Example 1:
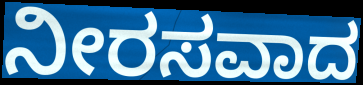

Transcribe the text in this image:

ನೀರಸವಾದ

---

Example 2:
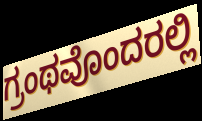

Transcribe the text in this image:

ಗ್ರಂಥವೊಂದರಲ್ಲಿ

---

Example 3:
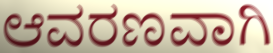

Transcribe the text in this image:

ಆವರಣವಾಗಿ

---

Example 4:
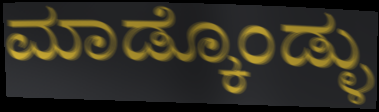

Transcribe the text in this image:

ಮಾಡ್ಕೊಂಡ್ಳು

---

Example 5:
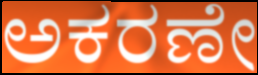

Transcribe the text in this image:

ಅಕರಣೇ